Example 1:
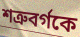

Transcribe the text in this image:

শত্রুবর্গকে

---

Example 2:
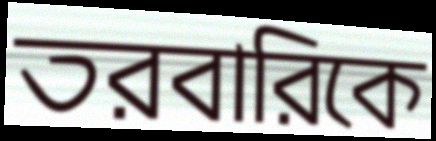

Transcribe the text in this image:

তরবারিকে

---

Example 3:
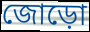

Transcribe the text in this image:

জোড়ো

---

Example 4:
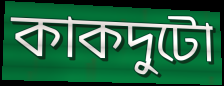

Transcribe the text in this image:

কাকদুটো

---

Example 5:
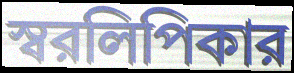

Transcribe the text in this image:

স্বরলিপিকার